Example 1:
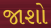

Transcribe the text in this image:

જાશો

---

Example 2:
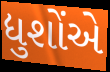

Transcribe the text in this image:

દ્યુશોંએ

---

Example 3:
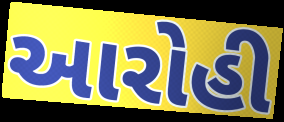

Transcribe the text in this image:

આરોહી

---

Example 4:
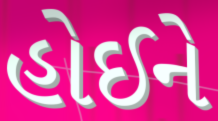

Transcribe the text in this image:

હોઈને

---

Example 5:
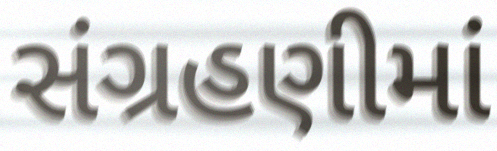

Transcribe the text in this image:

સંગ્રહણીમાં